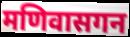
मणिवासगन